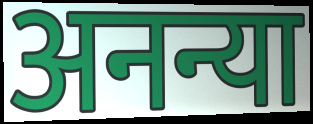
अनन्या